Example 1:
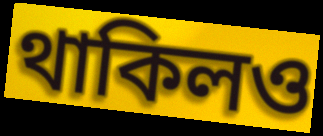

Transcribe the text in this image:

থাকিলও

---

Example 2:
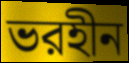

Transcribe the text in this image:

ভরহীন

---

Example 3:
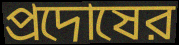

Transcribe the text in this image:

প্রদোষের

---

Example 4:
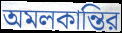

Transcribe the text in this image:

অমলকান্তির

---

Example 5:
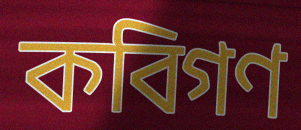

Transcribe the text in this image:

কবিগণ